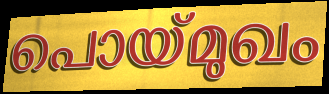
പൊയ്മുഖം